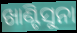
ଖାଣ୍ଟିସୁନା